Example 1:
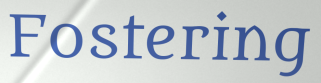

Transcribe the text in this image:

Fostering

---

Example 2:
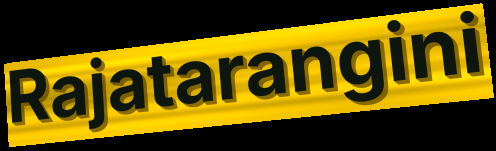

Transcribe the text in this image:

Rajatarangini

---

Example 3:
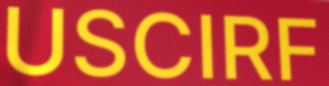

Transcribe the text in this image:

USCIRF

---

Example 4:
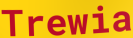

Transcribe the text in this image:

Trewia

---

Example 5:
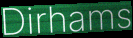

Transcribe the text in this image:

Dirhams